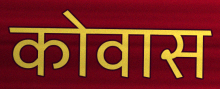
कोवास